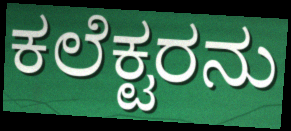
ಕಲೆಕ್ಟರನು